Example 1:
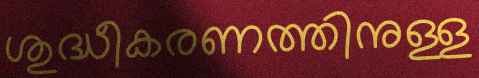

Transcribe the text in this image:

ശുദ്ധീകരണത്തിനുള്ള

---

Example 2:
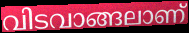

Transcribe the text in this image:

വിടവാങ്ങലാണ്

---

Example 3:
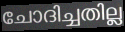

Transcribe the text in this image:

ചോദിച്ചതില്ല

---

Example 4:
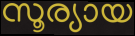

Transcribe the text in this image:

സൂര്യായ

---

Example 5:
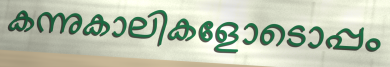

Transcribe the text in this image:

കന്നുകാലികളോടൊപ്പം